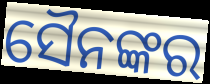
ସୈନଙ୍କର